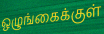
ஒழுங்கைக்குள்